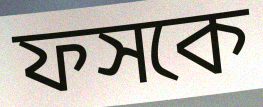
ফসকে